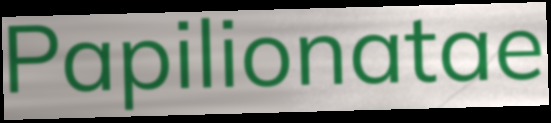
Papilionatae